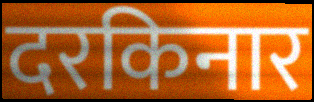
दरकिनार